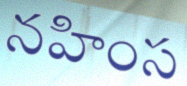
నహింస